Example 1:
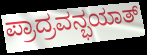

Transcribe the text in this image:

ಪ್ರಾದ್ರವನ್ಭಯಾತ್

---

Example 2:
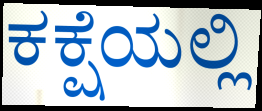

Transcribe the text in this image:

ಕಕ್ಷೆಯಲ್ಲಿ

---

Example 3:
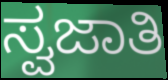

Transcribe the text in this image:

ಸ್ವಜಾತಿ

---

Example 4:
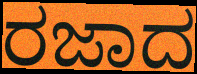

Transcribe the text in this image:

ರಜಾದ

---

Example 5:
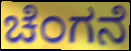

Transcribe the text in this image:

ಚೆಂಗನೆ